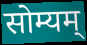
सोम्यम्